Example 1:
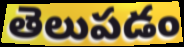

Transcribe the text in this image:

తెలుపడం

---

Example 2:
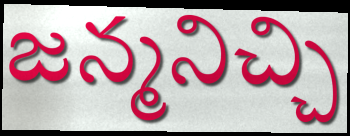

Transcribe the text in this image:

జన్మనిచ్చి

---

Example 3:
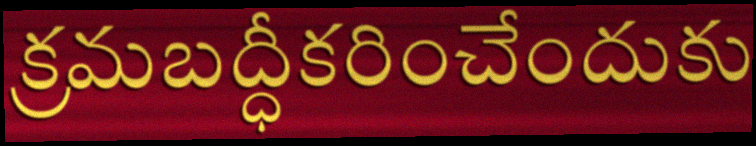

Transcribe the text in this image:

క్రమబద్ధీకరించేందుకు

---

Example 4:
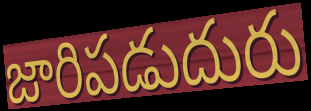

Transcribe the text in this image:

జారిపడుదురు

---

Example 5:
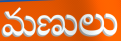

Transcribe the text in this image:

మణులు